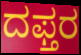
ದಫ್ತರ